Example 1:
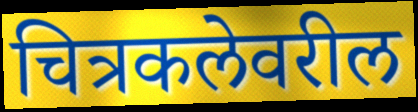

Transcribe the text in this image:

चित्रकलेवरील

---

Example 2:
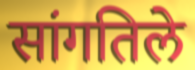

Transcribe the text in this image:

सांगतिले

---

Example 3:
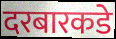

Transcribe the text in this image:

दरबारकडे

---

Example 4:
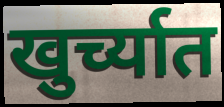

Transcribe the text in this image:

खुर्च्यात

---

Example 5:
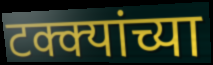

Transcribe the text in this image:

टक्क्यांच्या